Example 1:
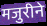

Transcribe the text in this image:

मजुरीने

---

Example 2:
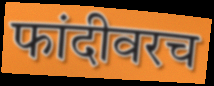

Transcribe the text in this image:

फांदीवरच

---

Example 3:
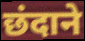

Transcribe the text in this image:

छंदाने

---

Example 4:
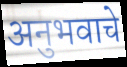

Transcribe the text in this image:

अनुभवाचे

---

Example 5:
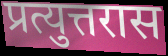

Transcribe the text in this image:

प्रत्युत्तरास